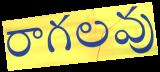
రాగలవు